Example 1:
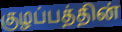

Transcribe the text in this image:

குழப்பத்தின்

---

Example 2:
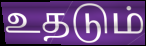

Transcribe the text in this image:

உதடும்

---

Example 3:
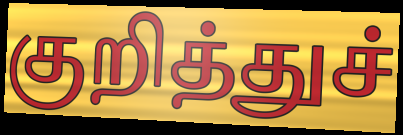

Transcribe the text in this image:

குறித்துச்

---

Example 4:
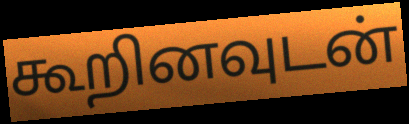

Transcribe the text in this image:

கூறினவுடன்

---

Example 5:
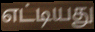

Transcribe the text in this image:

எட்டியது